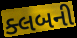
ક્લબની